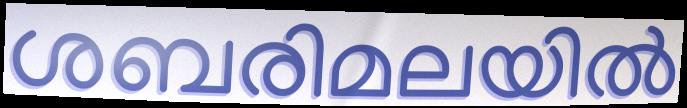
ശബരിമലയിൽ